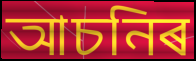
আচনিৰ